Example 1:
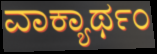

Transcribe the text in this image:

ವಾಕ್ಯಾರ್ಥಂ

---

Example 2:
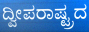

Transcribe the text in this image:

ದ್ವೀಪರಾಷ್ಟ್ರದ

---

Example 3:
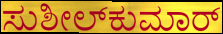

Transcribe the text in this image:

ಸುಶೀಲ್‌ಕುಮಾರ್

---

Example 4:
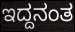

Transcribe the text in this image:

ಇದ್ದನಂತ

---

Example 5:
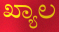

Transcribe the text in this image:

ಖ್ಯಾಲ